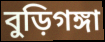
বুড়িগঙ্গা